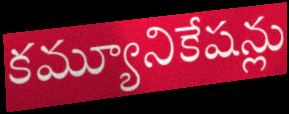
కమ్యూనికేషన్లు